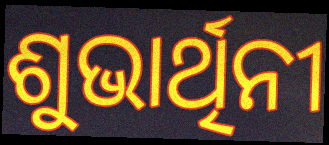
ଶୁଭାର୍ଥିନୀ